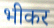
भीकर